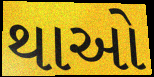
થાઓ